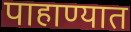
पाहाण्यात